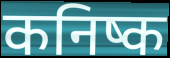
कनिष्क